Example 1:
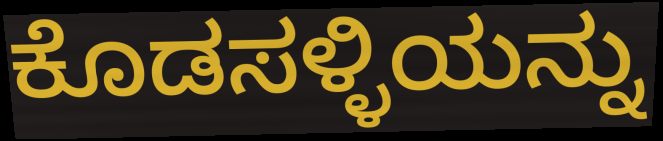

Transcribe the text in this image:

ಕೊಡಸಳ್ಳಿಯನ್ನು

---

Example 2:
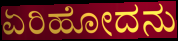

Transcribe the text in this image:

ಏರಿಹೋದನು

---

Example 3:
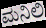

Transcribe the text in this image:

ಮನಿಲಿ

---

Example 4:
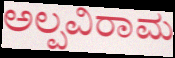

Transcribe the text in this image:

ಅಲ್ಪವಿರಾಮ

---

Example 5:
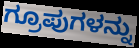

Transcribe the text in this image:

ಗ್ರೂಪುಗಳನ್ನು